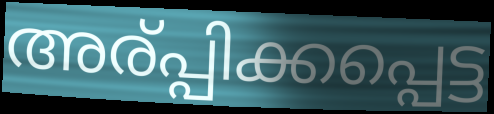
അര്പ്പിക്കപ്പെട്ട